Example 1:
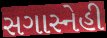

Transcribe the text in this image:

સગાસ્નેહી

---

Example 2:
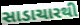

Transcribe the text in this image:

સાડાચારથી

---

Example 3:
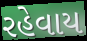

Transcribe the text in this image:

રહેવાય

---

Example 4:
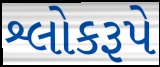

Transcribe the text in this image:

શ્લોકરૂપે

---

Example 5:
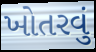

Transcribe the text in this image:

ખોતરવું